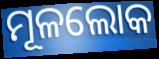
ମୂଳଲୋକ